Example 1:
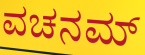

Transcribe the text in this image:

ವಚನಮ್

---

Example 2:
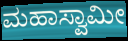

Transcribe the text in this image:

ಮಹಾಸ್ವಾಮೀ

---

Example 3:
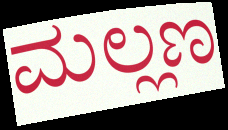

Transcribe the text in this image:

ಮಲ್ಲಣ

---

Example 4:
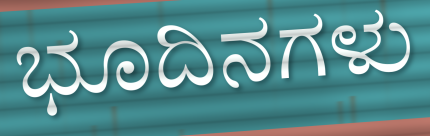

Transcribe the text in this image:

ಭೂದಿನಗಳು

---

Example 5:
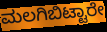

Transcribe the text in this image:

ಮಲಗಿಬಿಟ್ಟಾರೇ